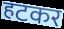
हटकर